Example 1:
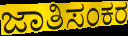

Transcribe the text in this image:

ಜಾತಿಸಂಕರ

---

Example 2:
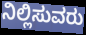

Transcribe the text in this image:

ನಿಲ್ಲಿಸುವರು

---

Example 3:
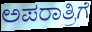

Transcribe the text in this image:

ಅಪರಾತ್ರಿಗೆ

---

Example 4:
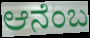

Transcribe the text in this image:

ಆನೆಂಬ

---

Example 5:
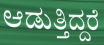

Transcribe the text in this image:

ಆಡುತ್ತಿದ್ದರೆ